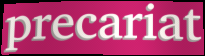
precariat